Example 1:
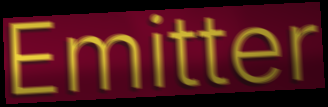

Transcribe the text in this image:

Emitter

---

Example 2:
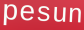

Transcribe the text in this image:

pesun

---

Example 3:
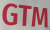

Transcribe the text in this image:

GTM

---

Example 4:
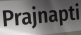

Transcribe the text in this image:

Prajnapti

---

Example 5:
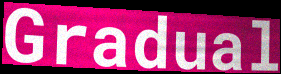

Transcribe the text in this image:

Gradual